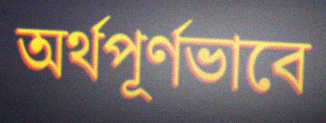
অর্থপূর্ণভাবে